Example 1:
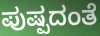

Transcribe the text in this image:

ಪುಷ್ಪದಂತೆ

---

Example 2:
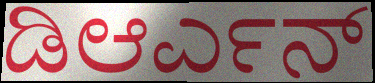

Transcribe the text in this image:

ಡಿಆರ್ಎನ್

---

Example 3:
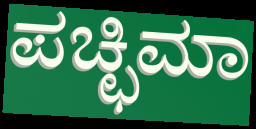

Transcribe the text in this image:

ಪಚ್ಛಿಮಾ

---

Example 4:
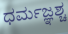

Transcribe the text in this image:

ಧರ್ಮಜ್ಞಶ್ಚ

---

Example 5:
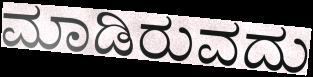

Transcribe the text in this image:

ಮಾಡಿರುವದು